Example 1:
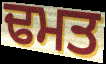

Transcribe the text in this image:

ਢਮਤ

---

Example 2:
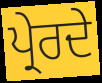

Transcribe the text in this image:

ਪ੍ਰੇਰਦੇ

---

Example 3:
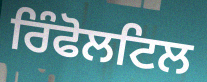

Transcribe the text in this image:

ਰਿੰਫੋਲਟਿਲ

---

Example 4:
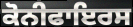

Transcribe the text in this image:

ਕੋਨੀਫਾਇਰਸ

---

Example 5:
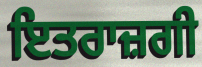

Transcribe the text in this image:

ਇਤਰਾਜ਼ਗੀ